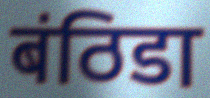
बंठिडा